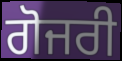
ਗੋਜਰੀ